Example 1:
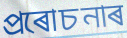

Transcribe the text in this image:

প্ৰৰোচনাৰ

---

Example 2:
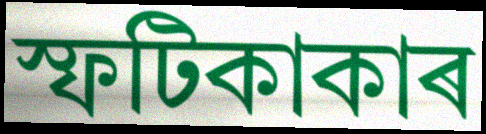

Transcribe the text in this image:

স্ফটিকাকাৰ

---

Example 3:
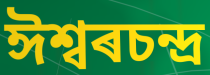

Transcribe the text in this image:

ঈশ্বৰচন্দ্ৰ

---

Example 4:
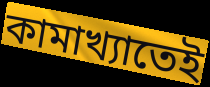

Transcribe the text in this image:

কামাখ্যাতেই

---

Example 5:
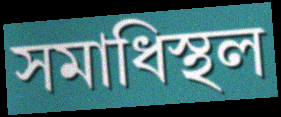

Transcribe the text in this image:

সমাধিস্থল